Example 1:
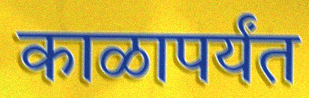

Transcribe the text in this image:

काळापर्यंत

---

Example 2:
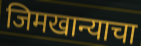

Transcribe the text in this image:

जिमखान्याचा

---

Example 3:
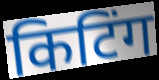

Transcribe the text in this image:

किटिंग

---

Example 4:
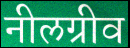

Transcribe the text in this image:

नीलग्रीव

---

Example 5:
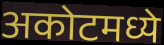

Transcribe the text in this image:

अकोटमध्ये